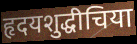
हृदयशुद्धीचिया